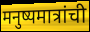
मनुष्यमात्रांची